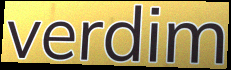
verdim